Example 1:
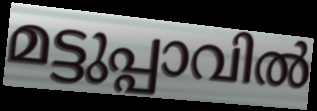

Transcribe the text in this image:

മട്ടുപ്പാവിൽ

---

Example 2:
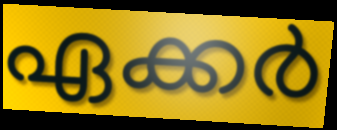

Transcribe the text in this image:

ഏക്കർ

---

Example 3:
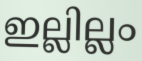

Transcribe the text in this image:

ഇല്ലില്ലം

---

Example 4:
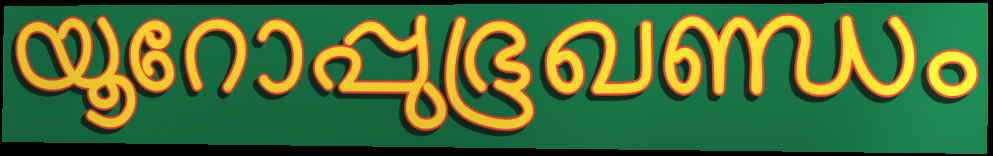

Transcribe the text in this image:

യൂറോപ്പുഭൂഖണ്ഡം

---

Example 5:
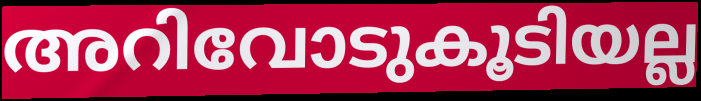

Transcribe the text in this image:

അറിവോടുകൂടിയല്ല